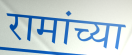
रामांच्या